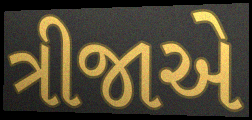
ત્રીજાએ